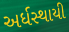
અર્ધસ્થાયી